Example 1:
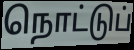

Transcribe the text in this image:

நொட்டுப்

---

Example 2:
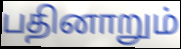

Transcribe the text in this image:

பதினாறும்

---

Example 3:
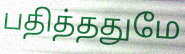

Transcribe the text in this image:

பதித்ததுமே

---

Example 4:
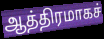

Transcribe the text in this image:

ஆத்திரமாகச்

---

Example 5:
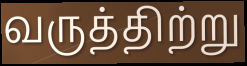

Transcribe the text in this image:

வருத்திற்று